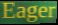
Eager